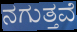
ನಗುತ್ತವೆ